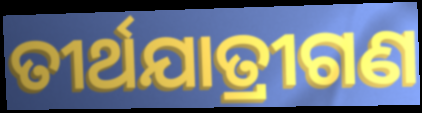
ତୀର୍ଥଯାତ୍ରୀଗଣ